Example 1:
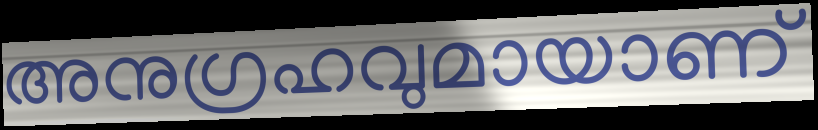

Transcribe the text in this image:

അനുഗ്രഹവുമായാണ്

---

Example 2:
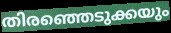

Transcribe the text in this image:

തിരഞ്ഞെടുക്കയും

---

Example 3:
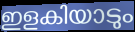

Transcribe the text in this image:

ഇളകിയാടും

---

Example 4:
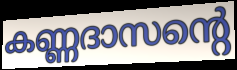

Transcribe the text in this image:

കണ്ണദാസന്റെ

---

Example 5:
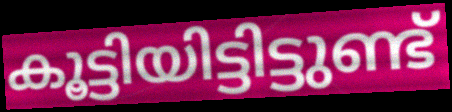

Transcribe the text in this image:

കൂട്ടിയിട്ടിട്ടുണ്ട്